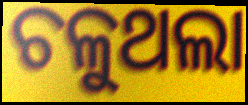
ଚଳୁଥଲା